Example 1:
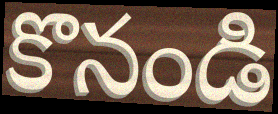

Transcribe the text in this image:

కొనండి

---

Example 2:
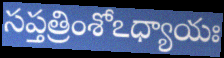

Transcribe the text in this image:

సప్తత్రింశోఽధ్యాయః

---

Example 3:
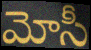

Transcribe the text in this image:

మోసీ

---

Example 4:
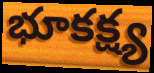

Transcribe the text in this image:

భూకక్ష్య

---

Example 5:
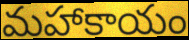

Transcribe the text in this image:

మహాకాయం